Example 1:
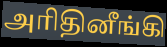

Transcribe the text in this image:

அரிதினீங்கி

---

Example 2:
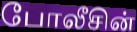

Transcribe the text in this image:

போலீசின்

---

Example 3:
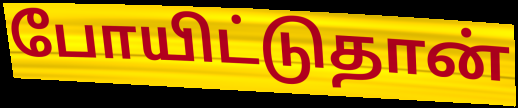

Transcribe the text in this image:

போயிட்டுதான்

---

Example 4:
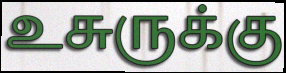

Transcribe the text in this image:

உசுருக்கு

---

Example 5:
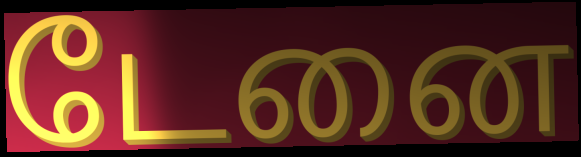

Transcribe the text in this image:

டேனை